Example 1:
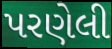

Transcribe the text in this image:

પરણેલી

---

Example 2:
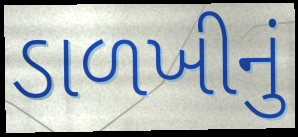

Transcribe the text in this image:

ડાળખીનું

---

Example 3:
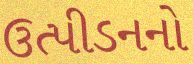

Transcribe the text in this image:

ઉત્પીડનનો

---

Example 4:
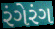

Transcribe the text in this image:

રંગેરંગ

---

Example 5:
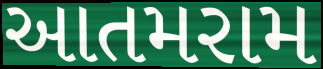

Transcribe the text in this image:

આતમરામ